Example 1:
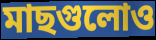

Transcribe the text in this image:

মাছগুলোও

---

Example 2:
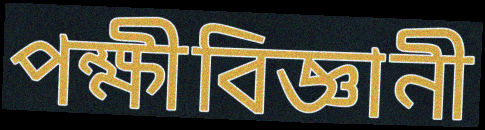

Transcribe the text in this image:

পক্ষীবিজ্ঞানী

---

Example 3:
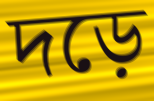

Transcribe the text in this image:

দড়ে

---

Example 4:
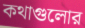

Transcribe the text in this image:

কথাগুলোর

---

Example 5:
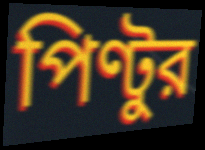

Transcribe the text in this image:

পিণ্টুর